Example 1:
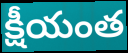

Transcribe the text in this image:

క్షీయంత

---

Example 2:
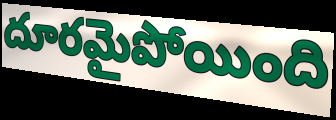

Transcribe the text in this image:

దూరమైపోయింది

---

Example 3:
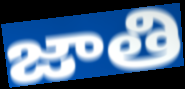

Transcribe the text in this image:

జాతి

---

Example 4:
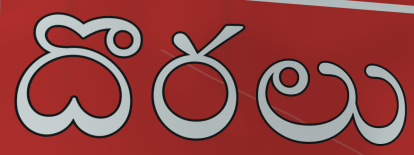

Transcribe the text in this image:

దొరలు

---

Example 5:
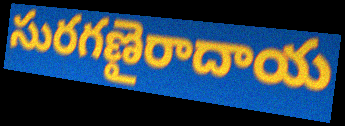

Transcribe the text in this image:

సురగణైరాదాయ